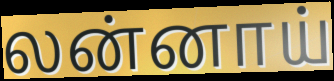
லன்னாய்